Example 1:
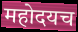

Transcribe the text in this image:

महोदयच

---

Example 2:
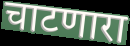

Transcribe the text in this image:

चाटणारा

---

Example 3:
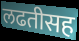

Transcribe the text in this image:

लढतीसह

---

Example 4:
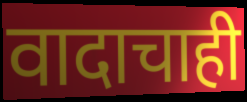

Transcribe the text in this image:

वादाचाही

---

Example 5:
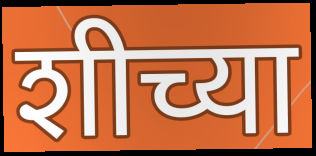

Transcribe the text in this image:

शीच्या